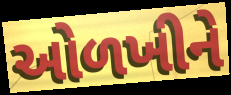
ઓળખીને